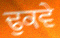
ਢੁਕਵੇ